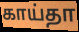
காய்தா